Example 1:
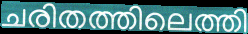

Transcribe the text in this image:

ചരിതത്തിലെത്തി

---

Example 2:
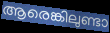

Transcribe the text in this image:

ആരെങ്കിലുണ്ടാ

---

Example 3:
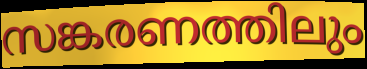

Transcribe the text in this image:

സങ്കരണത്തിലും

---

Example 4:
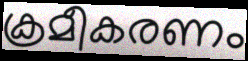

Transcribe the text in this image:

ക്രമീകരണം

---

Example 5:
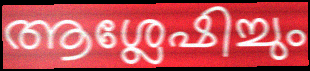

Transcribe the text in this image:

ആശ്ലേഷിച്ചും